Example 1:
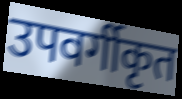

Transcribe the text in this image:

उपवर्गीकृत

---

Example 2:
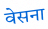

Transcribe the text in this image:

वेसना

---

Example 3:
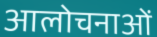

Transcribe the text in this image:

आलोचनाओं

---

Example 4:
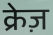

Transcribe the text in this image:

क्रेज़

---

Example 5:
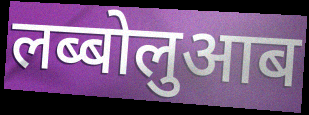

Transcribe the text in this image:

लब्बोलुआब